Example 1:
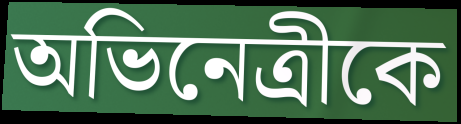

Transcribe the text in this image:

অভিনেত্রীকে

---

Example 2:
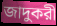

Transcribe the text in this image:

জাদুকরী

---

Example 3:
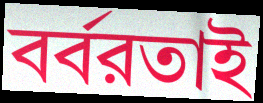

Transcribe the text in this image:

বর্বরতাই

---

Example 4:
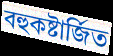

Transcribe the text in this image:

বহুকষ্টার্জিত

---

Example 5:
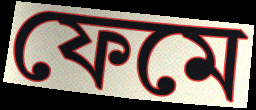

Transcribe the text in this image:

ফেমে